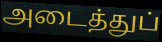
அடைத்துப்